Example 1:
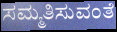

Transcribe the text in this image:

ಸಮ್ಮತಿಸುವಂತೆ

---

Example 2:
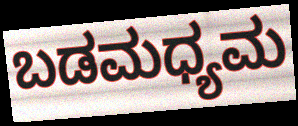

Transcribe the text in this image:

ಬಡಮಧ್ಯಮ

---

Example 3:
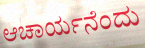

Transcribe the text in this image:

ಆಚಾರ್ಯನೆಂದು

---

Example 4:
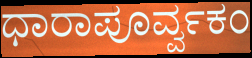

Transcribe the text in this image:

ಧಾರಾಪೂರ್ವ್ವಕಂ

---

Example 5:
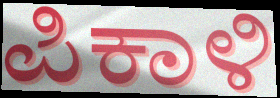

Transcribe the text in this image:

ಪಿಕಾಳಿ